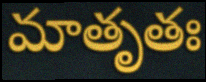
మాతృతః